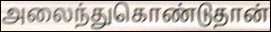
அலைந்துகொண்டுதான்